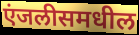
एंजलीसमधील